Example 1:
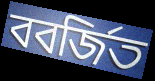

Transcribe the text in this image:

ববর্জিত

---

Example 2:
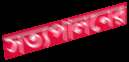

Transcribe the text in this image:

সত্যপালনের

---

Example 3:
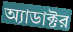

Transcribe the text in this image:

অ্যাডাক্টর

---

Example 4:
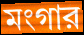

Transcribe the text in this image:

মংগার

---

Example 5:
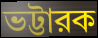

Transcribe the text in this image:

ভট্টারক